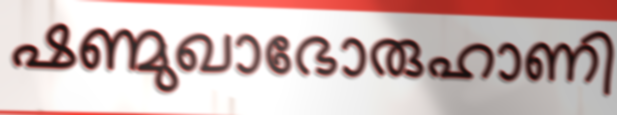
ഷണ്മുഖാഭോരുഹാണി